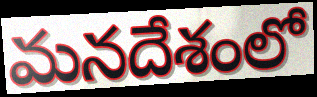
మనదేశంలో